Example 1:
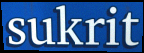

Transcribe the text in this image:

sukrit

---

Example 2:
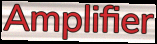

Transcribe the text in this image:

Amplifier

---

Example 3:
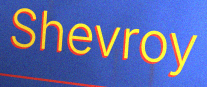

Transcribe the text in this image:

Shevroy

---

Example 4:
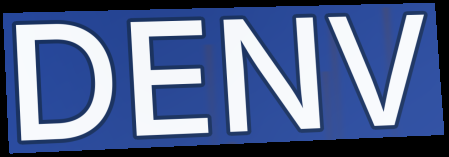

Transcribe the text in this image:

DENV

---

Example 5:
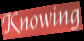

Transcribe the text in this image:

Knowing